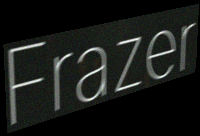
Frazer